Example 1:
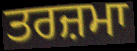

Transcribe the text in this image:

ਤਰਜ਼ਮਾ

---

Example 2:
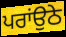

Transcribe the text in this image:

ਪਰਾਂਉਠੇ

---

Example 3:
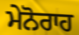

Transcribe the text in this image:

ਮੇਨੋਰਾਹ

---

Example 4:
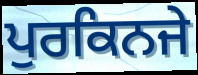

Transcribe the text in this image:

ਪੁਰਕਿਨਜੇ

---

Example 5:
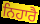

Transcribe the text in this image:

ਨਿਹਾਰੈ